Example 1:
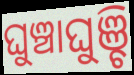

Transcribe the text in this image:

ଘୁଞ୍ଚାଘୁଞ୍ଚି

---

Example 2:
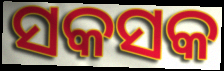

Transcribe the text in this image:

ସକସକ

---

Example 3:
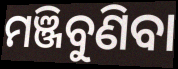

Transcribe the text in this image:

ମଞ୍ଜିବୁଣିବା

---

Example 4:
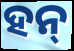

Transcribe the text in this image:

ହନ୍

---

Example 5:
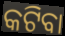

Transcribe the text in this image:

କଟିବା